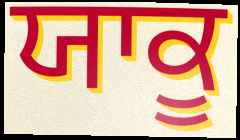
ਯਾਕੂ